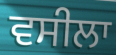
ਵਸੀਲਾ